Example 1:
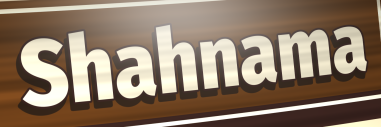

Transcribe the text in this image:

Shahnama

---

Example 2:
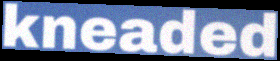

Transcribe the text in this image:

kneaded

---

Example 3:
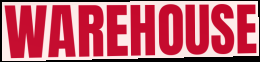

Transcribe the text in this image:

WAREHOUSE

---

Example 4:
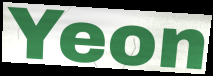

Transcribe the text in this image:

Yeon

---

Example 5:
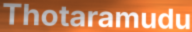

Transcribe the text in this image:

Thotaramudu